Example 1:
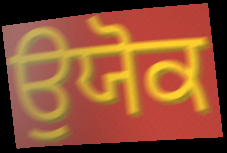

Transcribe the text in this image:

ਉਯੋਕ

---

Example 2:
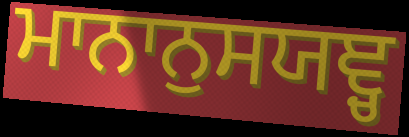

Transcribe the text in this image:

ਮਾਨਾਨੁਸਯਞ੍ਚ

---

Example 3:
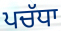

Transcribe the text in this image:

ਪਚੱਧਾ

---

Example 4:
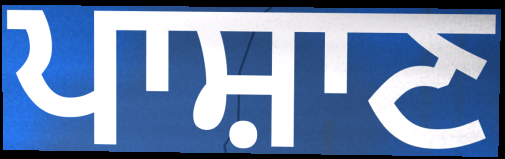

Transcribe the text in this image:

ਪਾਸ਼ਾਣ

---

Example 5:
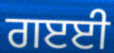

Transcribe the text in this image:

ਗੲਈ